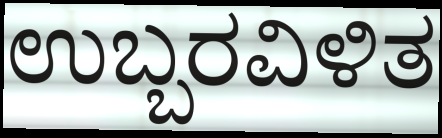
ಉಬ್ಬರವಿಳಿತ